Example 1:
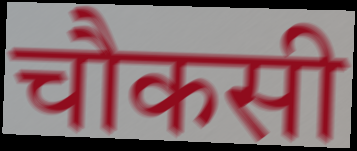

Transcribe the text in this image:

चौकसी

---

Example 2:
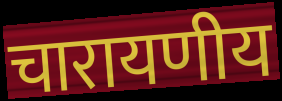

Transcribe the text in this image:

चारायणीय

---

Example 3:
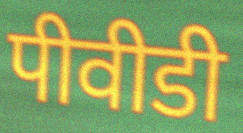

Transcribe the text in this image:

पीवीडी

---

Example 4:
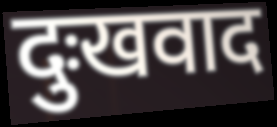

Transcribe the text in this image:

दुःखवाद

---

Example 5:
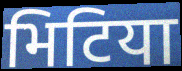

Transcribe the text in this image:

भिटिया